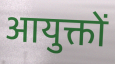
आयुक्तों